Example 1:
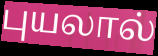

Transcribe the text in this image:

புயலால்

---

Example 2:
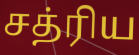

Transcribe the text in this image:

சத்ரிய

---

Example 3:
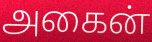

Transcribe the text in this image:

அகைன்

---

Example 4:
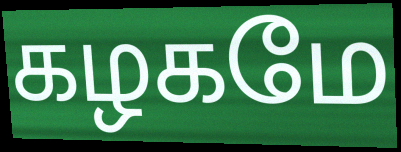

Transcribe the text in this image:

கழகமே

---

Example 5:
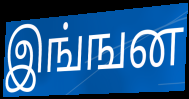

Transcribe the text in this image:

இங்ஙன